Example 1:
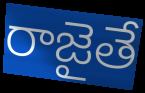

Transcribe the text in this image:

రాజైతే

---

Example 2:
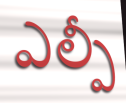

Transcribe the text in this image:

ఎల్పీ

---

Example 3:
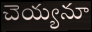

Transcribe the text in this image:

చెయ్యనూ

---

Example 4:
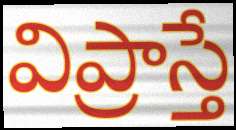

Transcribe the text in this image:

విప్రాస్తే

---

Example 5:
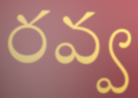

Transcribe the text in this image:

రవ్వ